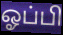
ஓப்பி